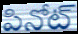
పినోట్